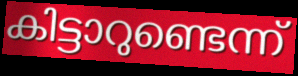
കിട്ടാറുണ്ടെന്ന്